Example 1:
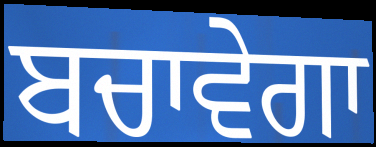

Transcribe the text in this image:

ਬਚਾਵੇਗਾ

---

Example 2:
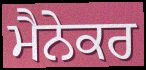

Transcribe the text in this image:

ਮੈਨੇਕਰ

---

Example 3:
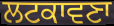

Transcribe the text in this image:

ਲਟਕਾਵਣਾ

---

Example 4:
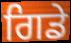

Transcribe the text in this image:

ਗਿਡੇ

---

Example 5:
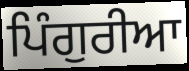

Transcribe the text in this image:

ਪਿੰਗੁਰੀਆ